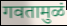
गवतामुळं